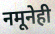
नमूनेही